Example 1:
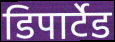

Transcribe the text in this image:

डिपार्टेड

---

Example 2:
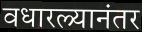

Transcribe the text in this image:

वधारल्यानंतर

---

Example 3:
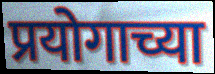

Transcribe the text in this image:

प्रयोगाच्या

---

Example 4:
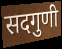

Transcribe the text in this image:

सदगुणी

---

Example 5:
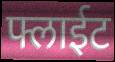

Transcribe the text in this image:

फ्लाईट